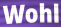
Wohl